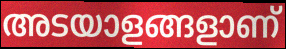
അടയാളങ്ങളാണ്